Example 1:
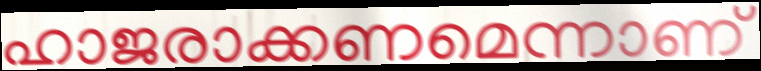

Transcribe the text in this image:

ഹാജരാക്കണമെന്നാണ്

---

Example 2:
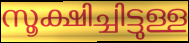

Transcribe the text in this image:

സൂക്ഷിച്ചിട്ടുള്ള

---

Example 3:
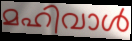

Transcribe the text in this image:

മഹിവാൾ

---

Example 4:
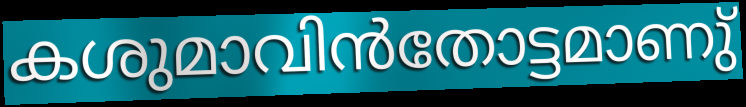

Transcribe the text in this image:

കശുമാവിൻതോട്ടമാണു്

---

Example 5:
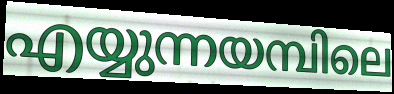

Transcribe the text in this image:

എയ്യുന്നയമ്പിലെ